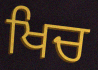
ਖਿਚ